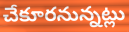
చేకూరనున్నట్లు